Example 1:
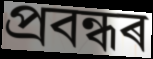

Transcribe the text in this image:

প্ৰবন্ধৰ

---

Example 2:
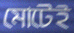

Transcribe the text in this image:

মোটেই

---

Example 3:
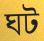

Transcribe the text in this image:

ঘট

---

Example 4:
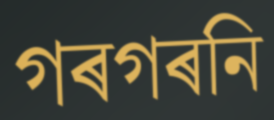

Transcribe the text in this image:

গৰগৰনি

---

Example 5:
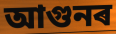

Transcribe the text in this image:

আগুনৰ